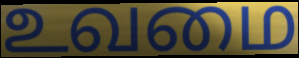
உவமை